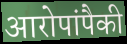
आरोपांपैकी